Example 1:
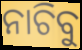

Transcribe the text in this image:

ନାଚିବୁ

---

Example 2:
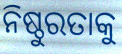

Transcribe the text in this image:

ନିଷ୍ଠୁରତାକୁ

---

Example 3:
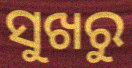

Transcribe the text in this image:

ସୁଖରୁ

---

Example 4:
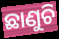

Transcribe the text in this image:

ଛାଣୁଚି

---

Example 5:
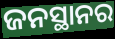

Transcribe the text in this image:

ଜନସ୍ଥାନର